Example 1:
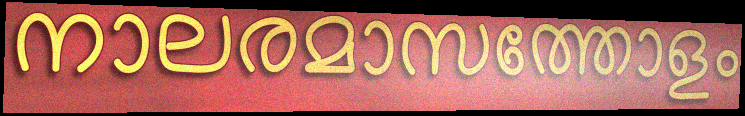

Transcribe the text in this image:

നാലരമാസത്തോളം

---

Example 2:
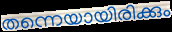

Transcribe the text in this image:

തന്നെയായിരിക്കും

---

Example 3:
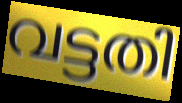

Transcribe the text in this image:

വട്ടതി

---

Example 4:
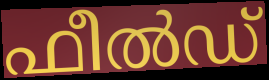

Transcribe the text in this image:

ഫീൽഡ്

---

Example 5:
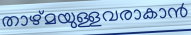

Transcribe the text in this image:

താഴ്മയുള്ളവരാകാൻ